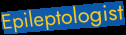
Epileptologist